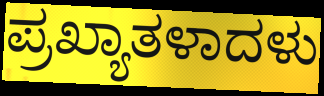
ಪ್ರಖ್ಯಾತಳಾದಳು